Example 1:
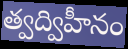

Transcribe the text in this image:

త్వద్విహీనం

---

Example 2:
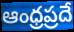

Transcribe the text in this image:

ఆంధ్రప్రదే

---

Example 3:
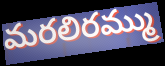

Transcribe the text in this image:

మరలిరమ్ము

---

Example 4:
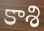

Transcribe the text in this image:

కాశి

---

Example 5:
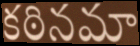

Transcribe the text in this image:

కఠినమా